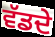
ਵੱਡਦੇ